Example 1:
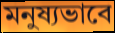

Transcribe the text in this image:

মনুষ্যভাবে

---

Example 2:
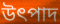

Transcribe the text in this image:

উৎপাদ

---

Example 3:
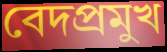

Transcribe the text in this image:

বেদপ্রমুখ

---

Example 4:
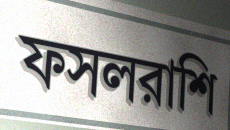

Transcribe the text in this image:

ফসলরাশি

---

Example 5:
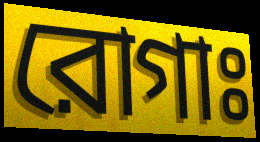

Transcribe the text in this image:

রোগাঃ